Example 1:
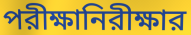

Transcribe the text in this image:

পরীক্ষানিরীক্ষার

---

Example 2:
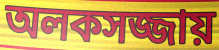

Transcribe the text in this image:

অলকসজ্জায়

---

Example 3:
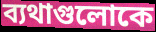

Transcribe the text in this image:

ব্যথাগুলোকে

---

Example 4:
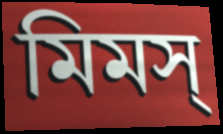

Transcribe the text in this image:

মিমস্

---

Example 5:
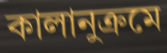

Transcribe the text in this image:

কালানুক্রমে